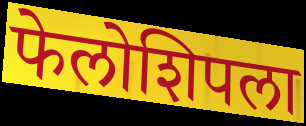
फेलोशिपला